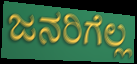
ಜನರಿಗೆಲ್ಲ